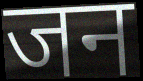
जन